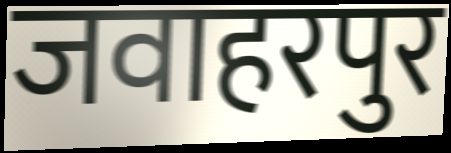
जवाहरपुर